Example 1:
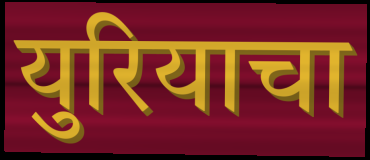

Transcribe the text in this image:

युरियाचा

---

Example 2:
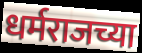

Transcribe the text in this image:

धर्मराजच्या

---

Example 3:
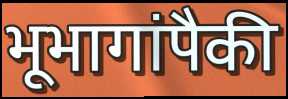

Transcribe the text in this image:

भूभागांपैकी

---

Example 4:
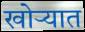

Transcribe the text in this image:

खोऱ्यात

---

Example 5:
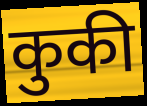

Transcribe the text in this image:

कुकी